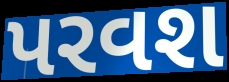
પરવશ